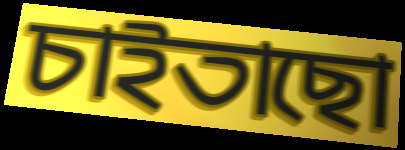
চাইতাছো